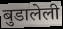
बुडालेली